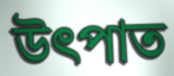
উৎপাত